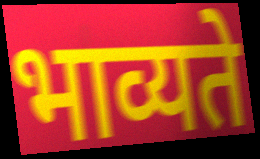
भाव्यते